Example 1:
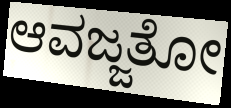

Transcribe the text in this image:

ಆವಜ್ಜತೋ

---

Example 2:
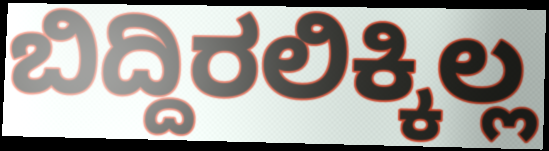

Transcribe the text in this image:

ಬಿದ್ದಿರಲಿಕ್ಕಿಲ್ಲ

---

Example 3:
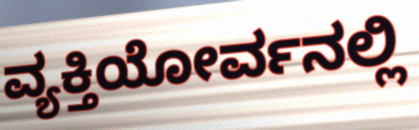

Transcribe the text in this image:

ವ್ಯಕ್ತಿಯೋರ್ವನಲ್ಲಿ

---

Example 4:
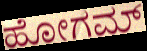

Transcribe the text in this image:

ಹೋಗಮ್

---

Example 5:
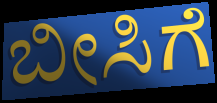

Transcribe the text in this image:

ಬೀಸಿಗೆ